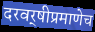
दरवर्षीप्रमाणेच